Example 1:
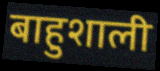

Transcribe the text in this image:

बाहुशाली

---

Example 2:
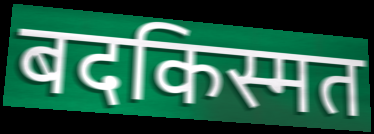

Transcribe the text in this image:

बदकिस्मत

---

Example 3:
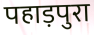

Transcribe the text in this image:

पहाड़पुरा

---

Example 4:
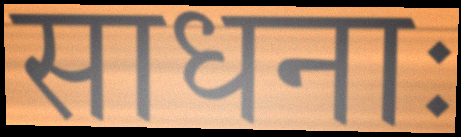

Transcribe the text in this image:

साधनाः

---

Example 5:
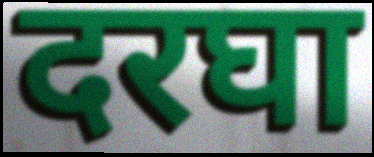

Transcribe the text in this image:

दरघा